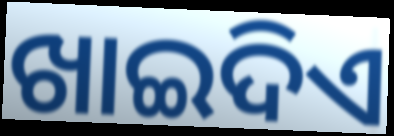
ଖାଇଦିଏ